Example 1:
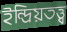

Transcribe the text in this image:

ইন্দ্রিয়তত্ত্ব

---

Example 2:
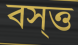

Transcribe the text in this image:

বস্ত্ত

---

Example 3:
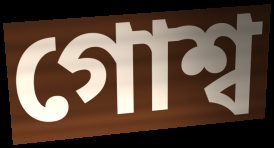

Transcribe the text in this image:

গোশ্ব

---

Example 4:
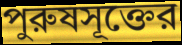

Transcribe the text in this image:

পুরুষসূক্তের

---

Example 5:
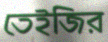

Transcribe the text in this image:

তেইজির